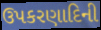
ઉપકરણાદિની